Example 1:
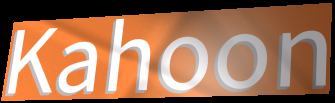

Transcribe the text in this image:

Kahoon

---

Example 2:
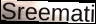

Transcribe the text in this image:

Sreemati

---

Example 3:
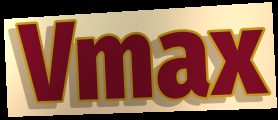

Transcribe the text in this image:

Vmax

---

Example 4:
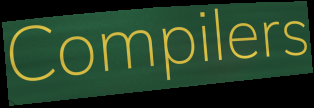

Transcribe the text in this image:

Compilers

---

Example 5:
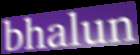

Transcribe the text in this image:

bhalun